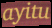
ayitu